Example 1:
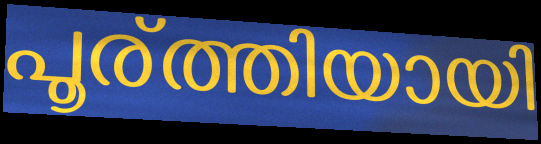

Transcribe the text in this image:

പൂര്ത്തിയായി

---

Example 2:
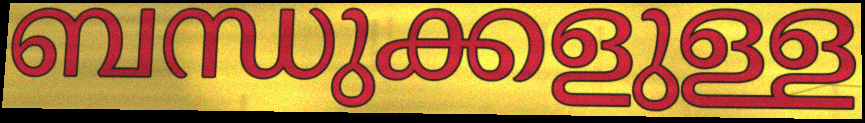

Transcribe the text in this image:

ബന്ധുക്കളുള്ള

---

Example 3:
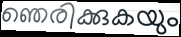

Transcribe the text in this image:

ഞെരിക്കുകയും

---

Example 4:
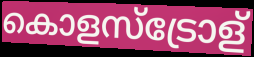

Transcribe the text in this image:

കൊളസ്ട്രോള്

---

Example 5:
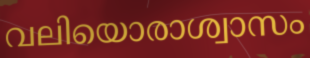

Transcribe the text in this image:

വലിയൊരാശ്വാസം